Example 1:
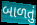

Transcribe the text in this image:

બાળતું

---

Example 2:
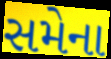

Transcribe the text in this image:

સમેના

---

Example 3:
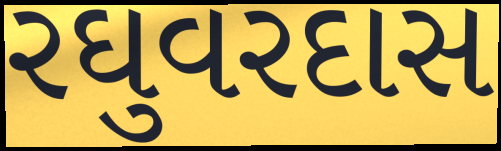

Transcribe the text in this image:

રઘુવરદાસ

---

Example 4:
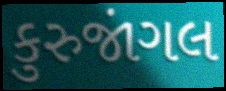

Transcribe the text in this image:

કુરુજાંગલ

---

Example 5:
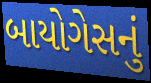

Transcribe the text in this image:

બાયોગેસનું